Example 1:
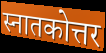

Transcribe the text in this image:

स्नातकोत्तर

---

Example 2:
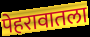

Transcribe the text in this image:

पेहरावातला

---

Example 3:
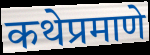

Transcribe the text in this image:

कथेप्रमाणे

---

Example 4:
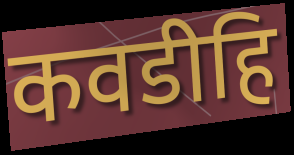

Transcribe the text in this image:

कवडीहि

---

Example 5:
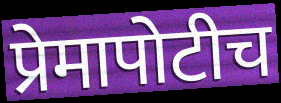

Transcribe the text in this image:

प्रेमापोटीच